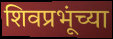
शिवप्रभूंच्या